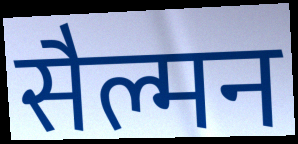
सैल्मन